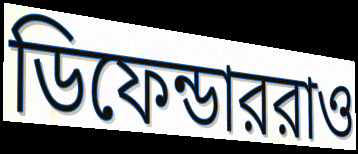
ডিফেন্ডাররাও